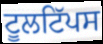
ਟੂਲਟਿੱਪਸ